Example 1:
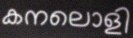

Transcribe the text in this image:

കനലൊളി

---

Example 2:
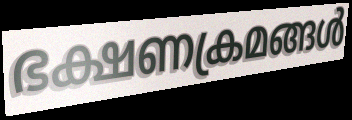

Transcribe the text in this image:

ഭക്ഷണക്രമങ്ങൾ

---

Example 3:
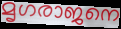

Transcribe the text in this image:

മൃഗരാജനെ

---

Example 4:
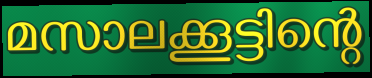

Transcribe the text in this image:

മസാലക്കൂട്ടിന്റെ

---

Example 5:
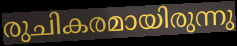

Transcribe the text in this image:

രുചികരമായിരുന്നു